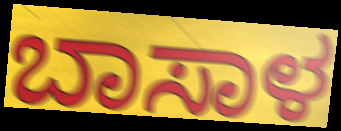
ಬಾಸಾಳ